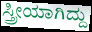
ಸ್ತ್ರೀಯಾಗಿದ್ದು